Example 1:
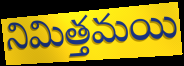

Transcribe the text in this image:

నిమిత్తమయి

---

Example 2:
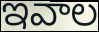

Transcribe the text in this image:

ఇవాల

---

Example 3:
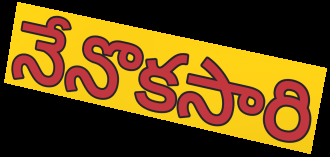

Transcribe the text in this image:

నేనొకసారి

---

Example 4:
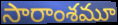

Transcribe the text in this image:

సారాంశమూ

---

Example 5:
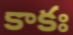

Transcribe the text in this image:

కాకః